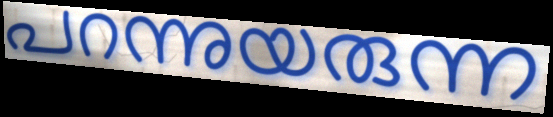
പറന്നുയരുന്ന